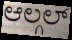
ಆಲ್ಗಲ್